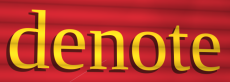
denote